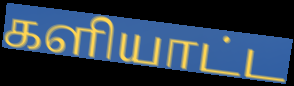
களியாட்ட